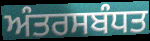
ਅੰਤਰਸਬੰਧਤ